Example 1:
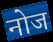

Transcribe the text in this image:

नोज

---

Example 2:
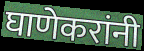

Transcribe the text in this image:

घाणेकरांनी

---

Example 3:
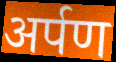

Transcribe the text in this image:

अर्पण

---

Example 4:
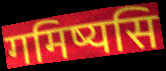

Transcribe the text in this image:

गमिष्यसि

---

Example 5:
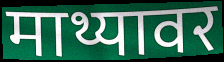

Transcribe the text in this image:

माथ्यावर